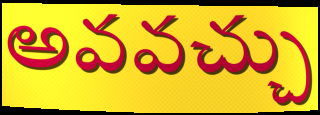
అవవచ్చు